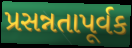
પ્રસન્નતાપૂર્વક